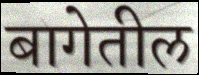
बागेतील